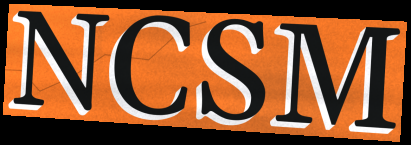
NCSM